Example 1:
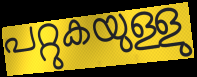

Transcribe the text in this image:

പറ്റുകയുള്ളു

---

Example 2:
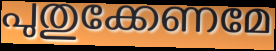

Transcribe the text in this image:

പുതുക്കേണമേ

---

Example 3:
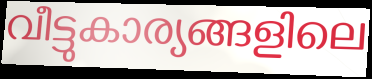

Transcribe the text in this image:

വീട്ടുകാര്യങ്ങളിലെ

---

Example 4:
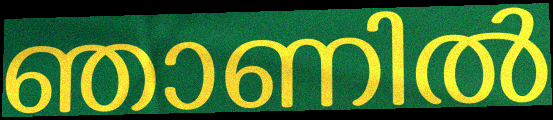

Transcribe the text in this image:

ഞാണിൽ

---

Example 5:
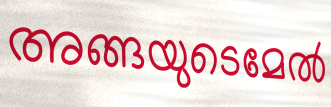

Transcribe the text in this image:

അങ്ങയുടെമേൽ